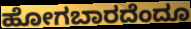
ಹೋಗಬಾರದೆಂದೂ